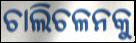
ଚାଲିଚଳନକୁ